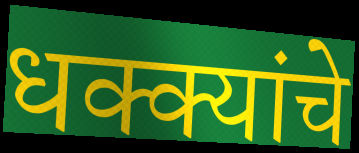
धक्क्यांचे